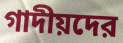
গাদীয়দের